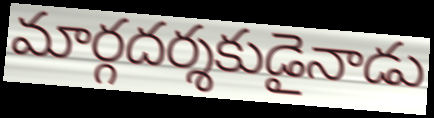
మార్గదర్శకుడైనాడు